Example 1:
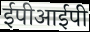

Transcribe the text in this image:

ईपीआईपी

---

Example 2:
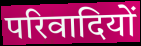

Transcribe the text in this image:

परिवादियों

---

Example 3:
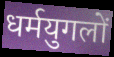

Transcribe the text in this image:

धर्मयुगलों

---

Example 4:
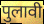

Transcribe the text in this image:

पुलावी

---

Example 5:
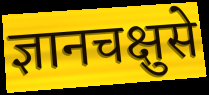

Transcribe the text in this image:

ज्ञानचक्षुसे